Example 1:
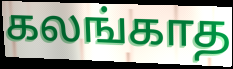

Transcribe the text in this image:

கலங்காத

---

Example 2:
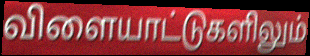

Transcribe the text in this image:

விளையாட்டுகளிலும்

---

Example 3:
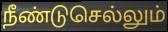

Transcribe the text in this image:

நீண்டுசெல்லும்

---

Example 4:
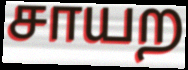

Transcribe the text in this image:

சாயற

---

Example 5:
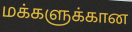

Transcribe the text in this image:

மக்களுக்கான